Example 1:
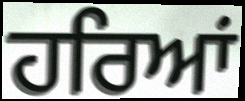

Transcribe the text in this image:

ਹਰਿਆਂ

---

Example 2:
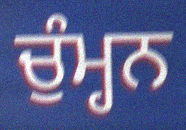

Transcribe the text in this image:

ਚੁੰਮ੍ਹਨ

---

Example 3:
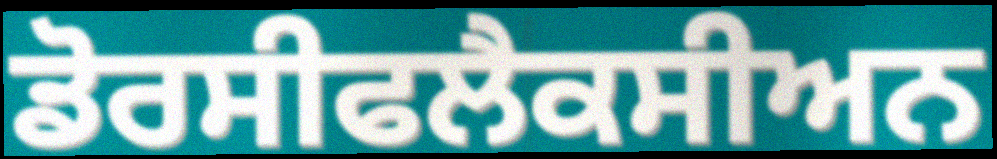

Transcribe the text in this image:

ਡੋਰਸੀਫਲੈਕਸੀਅਨ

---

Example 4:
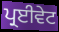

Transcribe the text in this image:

ਪ੍ਰਈਵੇਟ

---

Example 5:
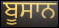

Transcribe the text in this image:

ਬੂਸਾਨ